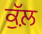
ਕੁੱਲ਼